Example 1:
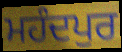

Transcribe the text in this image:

ਮਹੰਦਪੁਰ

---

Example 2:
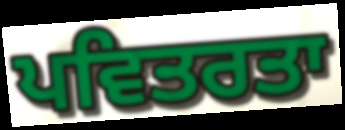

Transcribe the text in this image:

ਪਵਿਤਰਤਾ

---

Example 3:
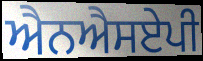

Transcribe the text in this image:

ਐਨਐਸਏਪੀ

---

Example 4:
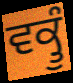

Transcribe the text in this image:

ਵਕ੍ਤੁੰ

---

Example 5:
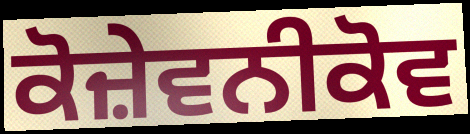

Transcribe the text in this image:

ਕੋਜ਼ੇਵਨੀਕੋਵ